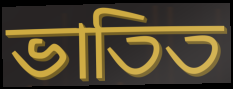
ভাতিত